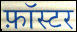
फ़ॉस्टर